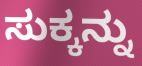
ಸುಕ್ಕನ್ನು